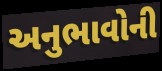
અનુભાવોની